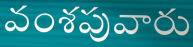
వంశపువారు